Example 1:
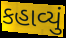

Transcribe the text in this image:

કહાવ્યું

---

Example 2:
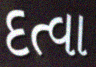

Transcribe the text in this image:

દત્વા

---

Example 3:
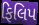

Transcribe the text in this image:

ફિલિપ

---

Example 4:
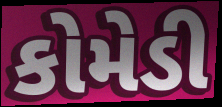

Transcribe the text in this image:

કોમેડી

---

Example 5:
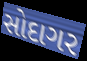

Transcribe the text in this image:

સોદાગર